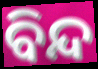
ବିନ୍ଦ